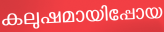
കലുഷമായിപ്പോയ